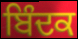
ਬਿੰਦਕ